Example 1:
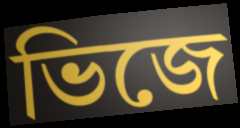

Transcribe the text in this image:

ভিজে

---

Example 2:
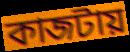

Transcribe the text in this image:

কাজটায়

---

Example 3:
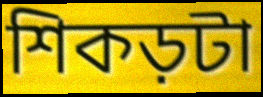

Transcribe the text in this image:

শিকড়টা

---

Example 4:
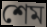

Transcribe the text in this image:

শেম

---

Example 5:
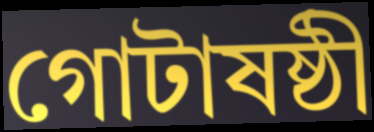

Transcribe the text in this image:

গোটাষষ্ঠী